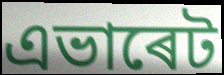
এভাৰেট